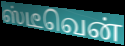
ஸ்டீவென்